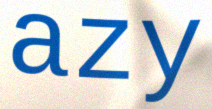
azy